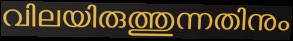
വിലയിരുത്തുന്നതിനും